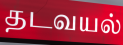
தடவயல்